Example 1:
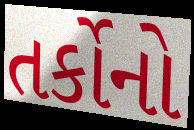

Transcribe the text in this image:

તર્કોનો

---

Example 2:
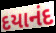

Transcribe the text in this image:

દયાનંદ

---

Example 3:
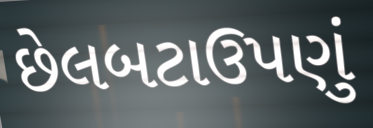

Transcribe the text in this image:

છેલબટાઉપણું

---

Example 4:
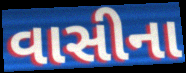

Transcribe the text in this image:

વાસીના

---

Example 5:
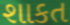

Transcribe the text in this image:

શાકત